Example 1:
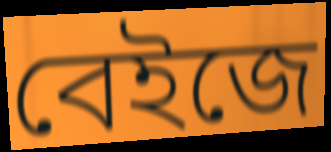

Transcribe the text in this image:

বেইজে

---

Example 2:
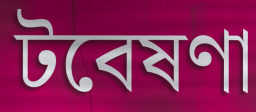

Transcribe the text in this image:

টবেষণা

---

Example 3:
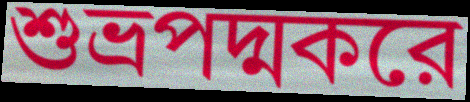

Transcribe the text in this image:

শুভ্রপদ্মকরে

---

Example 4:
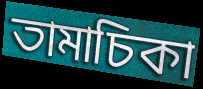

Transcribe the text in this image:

তামাচিকা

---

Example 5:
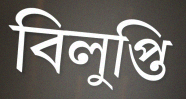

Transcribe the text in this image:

বিলুপ্তি